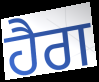
ਹੈਗ